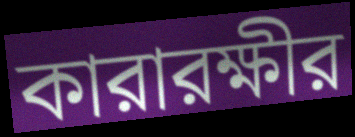
কারারক্ষীর